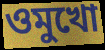
ওমুখো